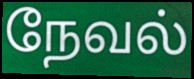
நேவல்